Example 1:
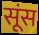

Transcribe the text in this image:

सूंस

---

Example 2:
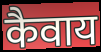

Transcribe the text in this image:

कैवाय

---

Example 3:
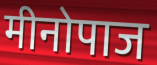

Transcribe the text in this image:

मीनोपाज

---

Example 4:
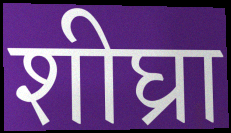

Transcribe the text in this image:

शीघ्रा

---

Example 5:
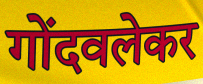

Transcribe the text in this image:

गोंदवलेकर